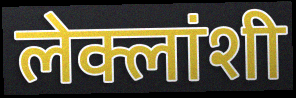
लेक्लांशी